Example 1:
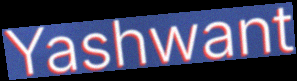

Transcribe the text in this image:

Yashwant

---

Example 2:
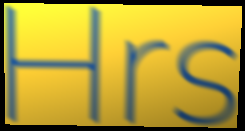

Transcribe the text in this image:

Hrs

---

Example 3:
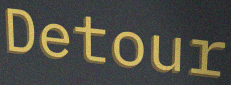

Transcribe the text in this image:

Detour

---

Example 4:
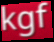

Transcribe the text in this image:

kgf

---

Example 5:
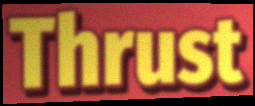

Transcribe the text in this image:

Thrust